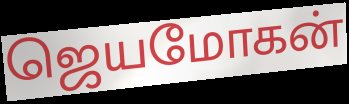
ஜெயமோகன்